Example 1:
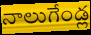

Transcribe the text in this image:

నాలుగేండ్ల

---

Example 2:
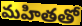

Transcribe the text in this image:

మహితతో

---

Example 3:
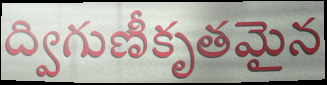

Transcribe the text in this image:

ద్విగుణీకృతమైన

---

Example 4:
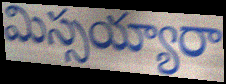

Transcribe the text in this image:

మిస్సయ్యారా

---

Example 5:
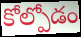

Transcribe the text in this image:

కోల్పోడం